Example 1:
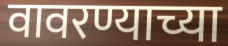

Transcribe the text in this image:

वावरण्याच्या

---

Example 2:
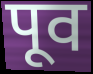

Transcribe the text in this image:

पूव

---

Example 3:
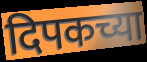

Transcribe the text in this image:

दिपकच्या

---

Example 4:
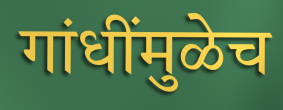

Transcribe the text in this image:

गांधींमुळेच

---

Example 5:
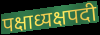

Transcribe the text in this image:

पक्षाध्यक्षपदी